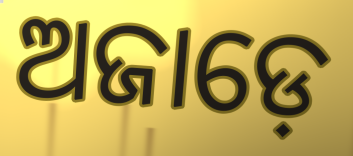
ଅଜାଡ଼େ